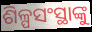
ଶିଳ୍ପସଂସ୍ଥାଙ୍କୁ